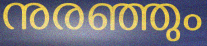
നുരഞ്ഞും